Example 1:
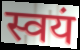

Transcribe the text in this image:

स्वयं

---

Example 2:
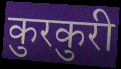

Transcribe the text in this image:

कुरकुरी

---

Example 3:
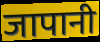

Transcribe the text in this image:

जापानी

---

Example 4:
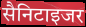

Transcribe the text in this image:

सैनिटाइजर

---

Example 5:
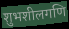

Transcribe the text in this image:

शुभशीलगणि